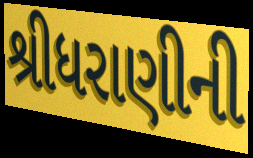
શ્રીધરાણીની